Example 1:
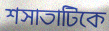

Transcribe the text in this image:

শসাতাটিকে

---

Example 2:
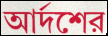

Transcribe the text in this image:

আর্দশের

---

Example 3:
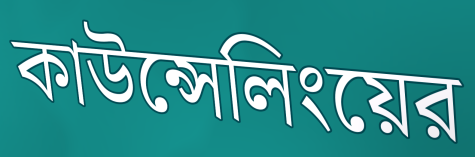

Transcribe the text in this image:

কাউন্সেলিংয়ের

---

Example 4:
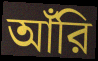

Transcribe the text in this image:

আঁরি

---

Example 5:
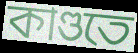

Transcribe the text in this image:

কাণ্ডতে